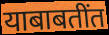
याबाबतींत